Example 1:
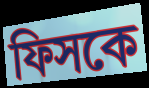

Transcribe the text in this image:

ফিসকে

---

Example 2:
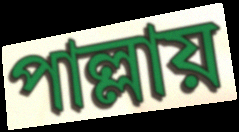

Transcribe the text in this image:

পাল্লায়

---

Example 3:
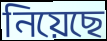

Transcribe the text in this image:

নিয়েছে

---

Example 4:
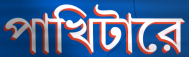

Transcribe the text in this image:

পাখিটারে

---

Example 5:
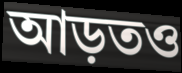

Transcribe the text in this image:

আড়তও